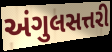
અંગુલસત્તરી